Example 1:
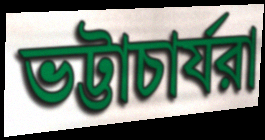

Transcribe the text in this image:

ভট্টাচার্যরা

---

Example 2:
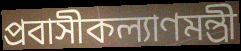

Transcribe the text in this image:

প্রবাসীকল্যাণমন্ত্রী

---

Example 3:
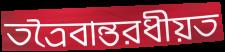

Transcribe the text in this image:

তত্রৈবান্তরধীয়ত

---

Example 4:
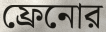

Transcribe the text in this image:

ফ্রেনোর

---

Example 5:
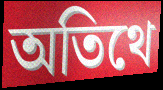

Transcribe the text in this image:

অতিথে